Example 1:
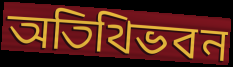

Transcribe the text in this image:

অতিথিভবন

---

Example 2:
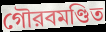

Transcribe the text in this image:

গৌরবমণ্ডিত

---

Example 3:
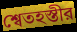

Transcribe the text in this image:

শ্বেতহস্তীর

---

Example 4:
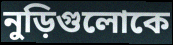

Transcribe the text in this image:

নুড়িগুলোকে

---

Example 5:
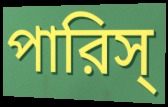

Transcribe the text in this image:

পারিস্